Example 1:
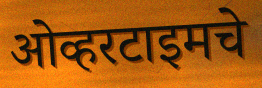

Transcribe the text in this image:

ओव्हरटाइमचे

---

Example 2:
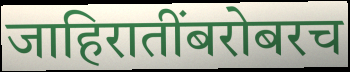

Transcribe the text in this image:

जाहिरातींबरोबरच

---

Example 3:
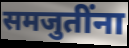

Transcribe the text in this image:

समजुतींना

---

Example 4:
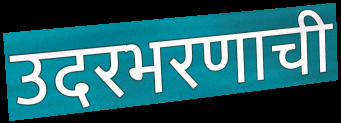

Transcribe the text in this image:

उदरभरणाची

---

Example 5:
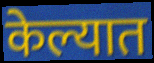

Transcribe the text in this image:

केल्यात